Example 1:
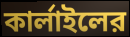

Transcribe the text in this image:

কার্লাইলের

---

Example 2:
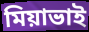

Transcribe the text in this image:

মিয়াভাই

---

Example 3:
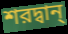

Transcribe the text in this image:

শরদ্বান্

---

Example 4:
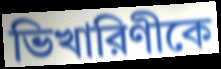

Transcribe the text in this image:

ভিখারিণীকে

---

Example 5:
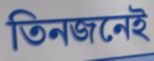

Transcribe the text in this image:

তিনজনেই